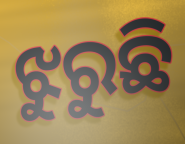
ଝୁରୁଛି